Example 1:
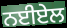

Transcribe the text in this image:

ਨਈਏਲ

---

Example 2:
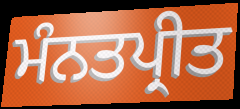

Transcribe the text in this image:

ਮੰਨਤਪ੍ਰੀਤ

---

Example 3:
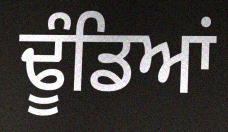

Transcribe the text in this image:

ਢੂੰਡਿਆਂ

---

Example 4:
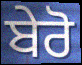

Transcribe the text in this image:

ਬੇਰੋ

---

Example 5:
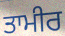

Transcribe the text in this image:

ਤਾਮੀਰ